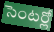
సెంటర్లో